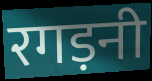
रगड़नी